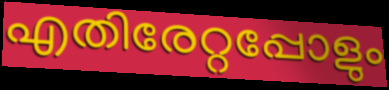
എതിരേറ്റപ്പോളും